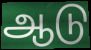
ஆடு